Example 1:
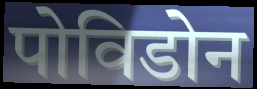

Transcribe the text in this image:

पोविडोन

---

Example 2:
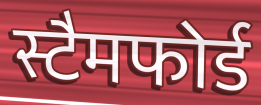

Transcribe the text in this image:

स्टैमफोर्ड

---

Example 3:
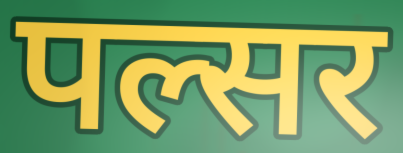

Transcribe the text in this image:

पल्सर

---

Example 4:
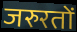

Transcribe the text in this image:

जरुरतों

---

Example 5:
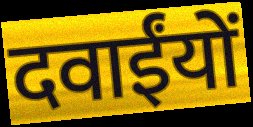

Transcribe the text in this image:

दवाईंयों